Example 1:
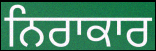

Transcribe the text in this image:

ਨਿਰਾਕਾਰ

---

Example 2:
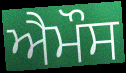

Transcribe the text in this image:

ਐਮੌਸ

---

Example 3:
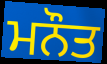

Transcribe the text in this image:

ਮਨੌਤ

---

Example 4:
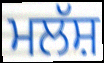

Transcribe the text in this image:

ਮਲੱਸ਼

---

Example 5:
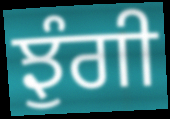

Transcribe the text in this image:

ਝੁੰਗੀ